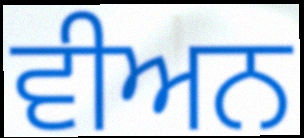
ਵੀਅਨ